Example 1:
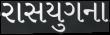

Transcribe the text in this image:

રાસયુગના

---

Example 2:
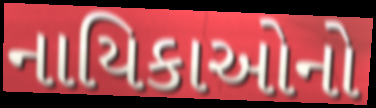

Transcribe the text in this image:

નાયિકાઓનો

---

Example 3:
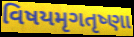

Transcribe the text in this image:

વિષયમૃગતૃષ્ણા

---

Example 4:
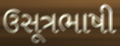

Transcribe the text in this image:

ઉસૂત્રભાષી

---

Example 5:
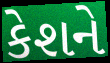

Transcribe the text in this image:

કેશને